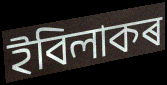
ইবিলাকৰ